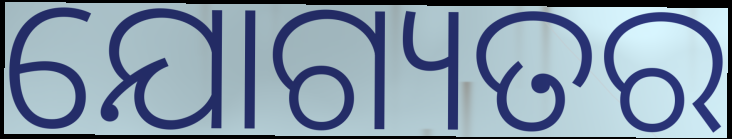
ଯୋଗ୍ୟତର